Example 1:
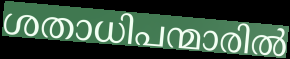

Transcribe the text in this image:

ശതാധിപന്മാരിൽ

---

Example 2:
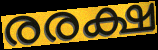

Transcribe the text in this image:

രരക്ഷ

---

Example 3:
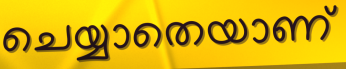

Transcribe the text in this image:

ചെയ്യാതെയാണ്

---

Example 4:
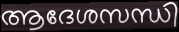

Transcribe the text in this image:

ആദേശസന്ധി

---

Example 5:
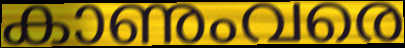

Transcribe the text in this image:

കാണുംവരെ